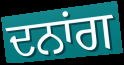
ਦਨਾਂਗ